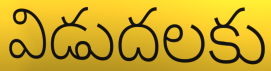
విడుదలకు